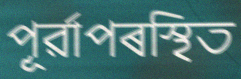
পূৰ্ৱাপৰস্থিত